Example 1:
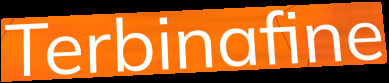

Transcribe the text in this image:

Terbinafine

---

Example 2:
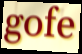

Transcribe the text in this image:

gofe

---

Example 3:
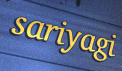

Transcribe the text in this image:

sariyagi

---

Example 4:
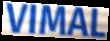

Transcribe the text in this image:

VIMAL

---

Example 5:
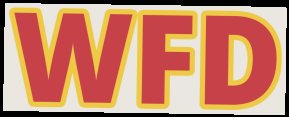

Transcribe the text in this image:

WFD